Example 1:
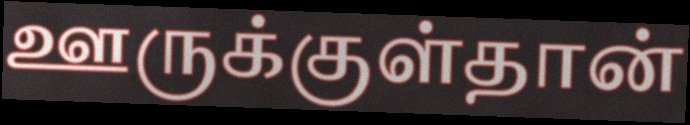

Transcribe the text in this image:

ஊருக்குள்தான்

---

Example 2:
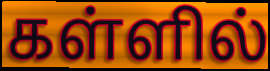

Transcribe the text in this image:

கள்ளில்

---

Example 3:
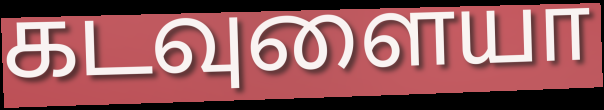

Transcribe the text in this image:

கடவுளையா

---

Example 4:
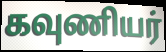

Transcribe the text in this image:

கவுணியர்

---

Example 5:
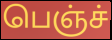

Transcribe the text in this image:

பெஞ்ச்